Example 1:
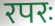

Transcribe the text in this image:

रपरः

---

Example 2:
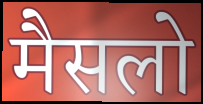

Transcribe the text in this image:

मैसलो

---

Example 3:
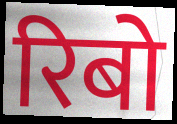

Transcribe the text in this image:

रिबो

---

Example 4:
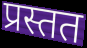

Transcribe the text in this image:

प्रस्तत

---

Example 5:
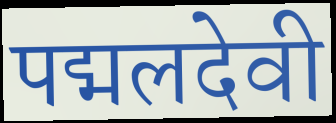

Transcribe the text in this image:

पद्मलदेवी